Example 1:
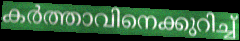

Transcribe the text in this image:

കർത്താവിനെക്കുറിച്ച്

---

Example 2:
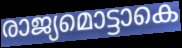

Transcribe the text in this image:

രാജ്യമൊട്ടാകെ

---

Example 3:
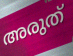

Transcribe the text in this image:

അരുത്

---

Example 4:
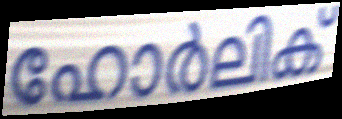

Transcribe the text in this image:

ഹോർലിക്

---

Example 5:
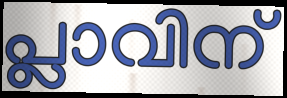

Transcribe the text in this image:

പ്ലാവിന്